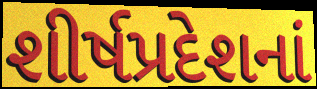
શીર્ષપ્રદેશનાં